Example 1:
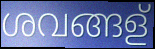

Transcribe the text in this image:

ശവങ്ങള്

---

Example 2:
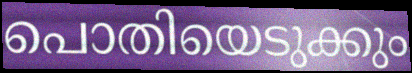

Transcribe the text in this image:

പൊതിയെടുക്കും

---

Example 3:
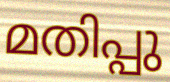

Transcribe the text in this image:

മതിപ്പു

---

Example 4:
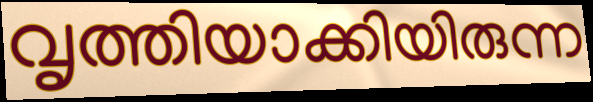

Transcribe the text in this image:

വൃത്തിയാക്കിയിരുന്ന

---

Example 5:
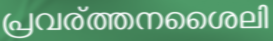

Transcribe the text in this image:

പ്രവര്ത്തനശൈലി